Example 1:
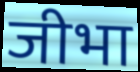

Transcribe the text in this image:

जीभा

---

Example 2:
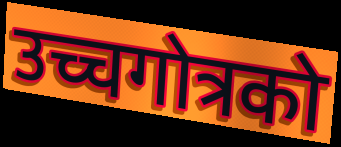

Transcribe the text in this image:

उच्चगोत्रको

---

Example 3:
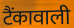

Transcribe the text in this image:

टैंकावाली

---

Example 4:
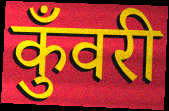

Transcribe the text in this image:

कुँवरी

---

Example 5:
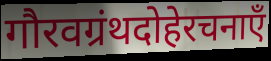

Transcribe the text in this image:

गौरवग्रंथदोहेरचनाएँ